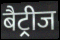
बैट्रीज